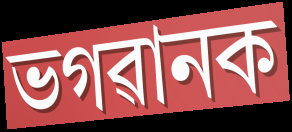
ভগৱানক